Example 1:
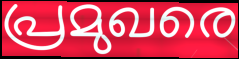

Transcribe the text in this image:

പ്രമുഖരെ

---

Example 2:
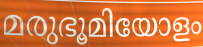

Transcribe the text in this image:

മരുഭൂമിയോളം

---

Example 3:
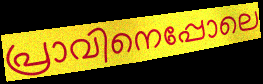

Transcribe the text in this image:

പ്രാവിനെപ്പോലെ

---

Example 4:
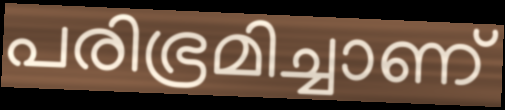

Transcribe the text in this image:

പരിഭ്രമിച്ചാണ്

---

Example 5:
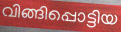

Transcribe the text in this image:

വിങ്ങിപ്പൊട്ടിയ